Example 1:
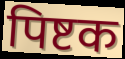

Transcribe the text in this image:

पिष्टक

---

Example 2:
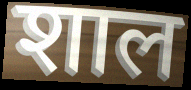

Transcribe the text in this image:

शाल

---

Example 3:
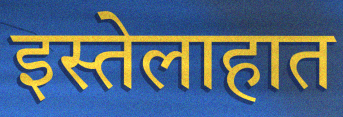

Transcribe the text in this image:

इस्तेलाहात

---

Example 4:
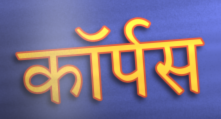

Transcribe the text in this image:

कॉर्पस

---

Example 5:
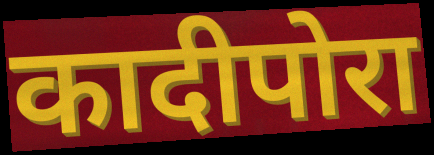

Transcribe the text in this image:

कादीपोरा